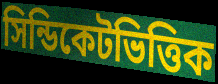
সিন্ডিকেটভিত্তিক